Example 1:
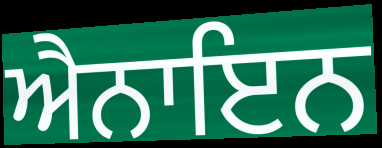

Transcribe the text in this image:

ਐਨਾਇਨ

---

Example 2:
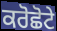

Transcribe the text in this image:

ਕਰੋਛੋਟੇ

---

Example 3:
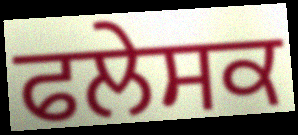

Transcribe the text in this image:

ਫਲੇਸਕ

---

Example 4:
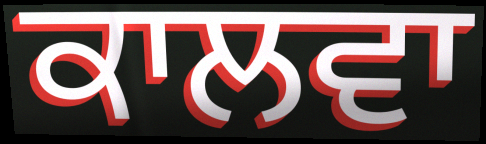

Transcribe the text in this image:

ਕਾਲਵਾ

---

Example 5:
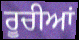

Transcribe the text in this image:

ਰੂਚੀਆਂ